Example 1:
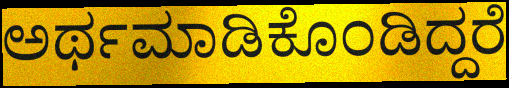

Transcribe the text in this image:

ಅರ್ಥಮಾಡಿಕೊಂಡಿದ್ದರೆ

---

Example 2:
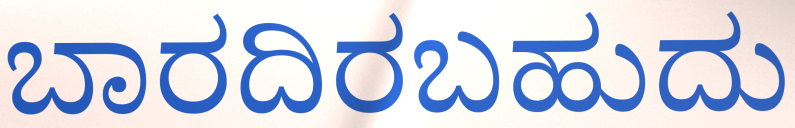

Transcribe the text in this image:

ಬಾರದಿರಬಹುದು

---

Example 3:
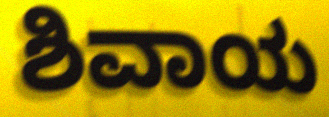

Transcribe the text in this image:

ಶಿವಾಯ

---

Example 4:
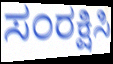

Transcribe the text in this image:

ಸಂರಕ್ಷಿಸಿ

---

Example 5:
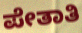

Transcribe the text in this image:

ಪೇತಾತಿ